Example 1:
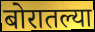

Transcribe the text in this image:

बोरातल्या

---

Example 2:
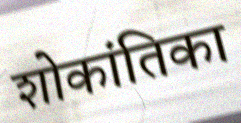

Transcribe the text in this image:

शोकांतिका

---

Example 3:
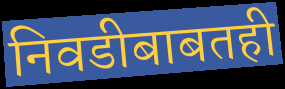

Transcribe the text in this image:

निवडीबाबतही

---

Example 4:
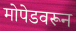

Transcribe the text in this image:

मोपेडवरून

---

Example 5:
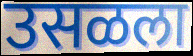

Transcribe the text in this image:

उसळला